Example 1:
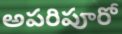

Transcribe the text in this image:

అపరిపూరో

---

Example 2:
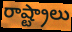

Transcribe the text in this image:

రాష్ట్రాలు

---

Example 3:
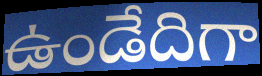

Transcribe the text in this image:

ఉండేదిగా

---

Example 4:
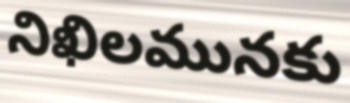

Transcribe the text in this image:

నిఖిలమునకు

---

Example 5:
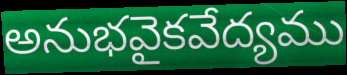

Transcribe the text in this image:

అనుభవైకవేద్యము